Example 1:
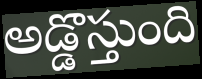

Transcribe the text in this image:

అడ్డొస్తుంది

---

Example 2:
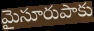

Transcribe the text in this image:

మైసూరుపాకు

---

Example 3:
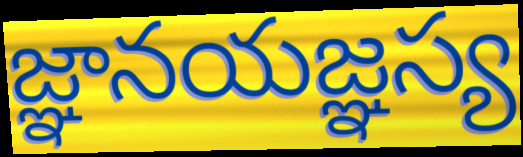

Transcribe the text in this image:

జ్ఞానయజ్ఞస్య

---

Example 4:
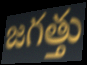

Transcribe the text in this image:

జగత్తు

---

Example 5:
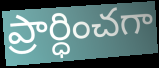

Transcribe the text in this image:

ప్రార్ధించగా